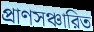
প্রাণসঞ্চারিত